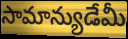
సామాన్యుడేమీ